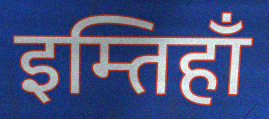
इम्तिहाँ